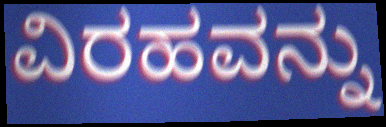
ವಿರಹವನ್ನು